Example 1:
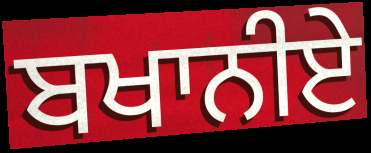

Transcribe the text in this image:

ਬਖਾਨੀਏ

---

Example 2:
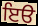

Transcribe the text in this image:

ਇੳਂ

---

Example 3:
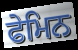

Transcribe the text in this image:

ਫੇਮਿਨ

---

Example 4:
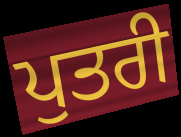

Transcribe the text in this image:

ਪੁਤਰੀ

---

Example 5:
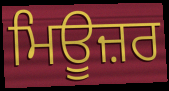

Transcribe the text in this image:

ਮਿਊਜ਼ਰ